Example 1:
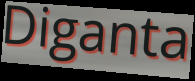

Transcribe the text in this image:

Diganta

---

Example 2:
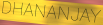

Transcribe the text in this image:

DHANANJAY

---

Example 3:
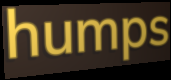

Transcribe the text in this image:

humps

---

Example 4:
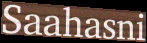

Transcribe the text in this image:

Saahasni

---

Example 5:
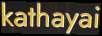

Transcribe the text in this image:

kathayai